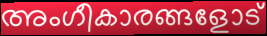
അംഗീകാരങ്ങളോട്